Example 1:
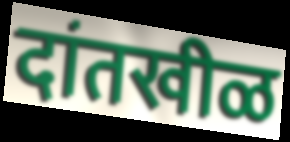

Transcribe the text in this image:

दांतखीळ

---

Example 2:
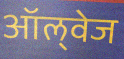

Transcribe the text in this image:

ऑल्वेज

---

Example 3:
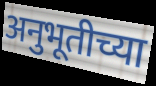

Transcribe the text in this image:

अनुभूतीच्या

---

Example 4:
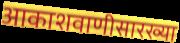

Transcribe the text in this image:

आकाशवाणीसारख्या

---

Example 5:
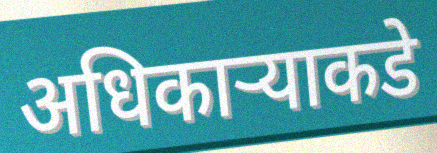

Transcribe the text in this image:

अधिकार्‍याकडे